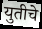
युतीचे